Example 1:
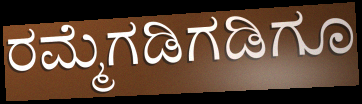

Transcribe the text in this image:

ರಮ್ಮೆಗಡಿಗಡಿಗೂ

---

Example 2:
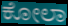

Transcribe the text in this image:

ಕೋಲಾ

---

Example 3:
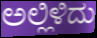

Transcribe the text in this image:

ಅಲ್ಲಿಳಿದು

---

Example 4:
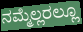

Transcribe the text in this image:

ನಮ್ಮೆಲ್ಲರಲ್ಲೂ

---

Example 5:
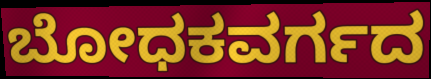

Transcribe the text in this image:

ಬೋಧಕವರ್ಗದ